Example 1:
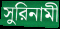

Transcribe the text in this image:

সুরিনামী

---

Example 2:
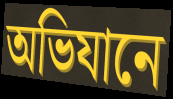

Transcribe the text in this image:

অভিযানে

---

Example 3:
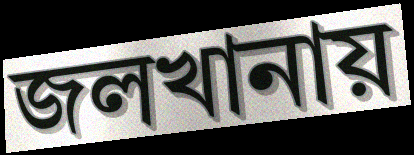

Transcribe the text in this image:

জলখানায়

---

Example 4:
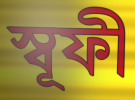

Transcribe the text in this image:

স্বূফী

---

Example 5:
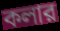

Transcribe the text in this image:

কলার